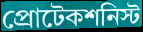
প্রোটেকশনিস্ট